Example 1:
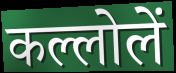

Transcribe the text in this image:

कल्लोलें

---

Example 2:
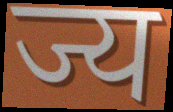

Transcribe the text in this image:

ज्य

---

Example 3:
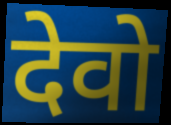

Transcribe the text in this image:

देवो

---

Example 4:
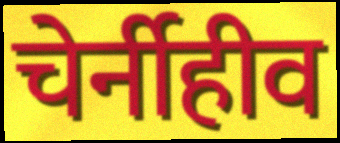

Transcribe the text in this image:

चेर्नीहीव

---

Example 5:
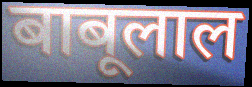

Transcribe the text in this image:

बाबूलाल